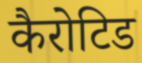
कैरोटिड